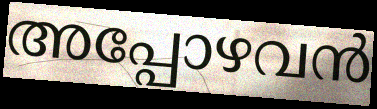
അപ്പോഴവൻ